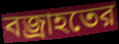
বজ্রাহতের